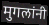
मुगलांनी